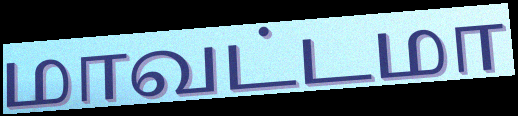
மாவட்டமா